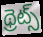
థ్రెట్స్